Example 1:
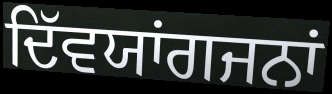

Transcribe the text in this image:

ਦਿੱਵਯਾਂਗਜਨਾਂ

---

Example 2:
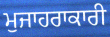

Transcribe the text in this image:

ਮੁਜਾਹਰਾਕਾਰੀ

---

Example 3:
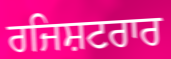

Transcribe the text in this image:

ਰਜਿਸ਼ਟਰਾਰ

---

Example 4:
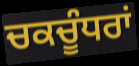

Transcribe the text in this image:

ਚਕਚੂੰਧਰਾਂ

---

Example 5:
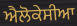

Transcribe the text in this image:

ਐਲੋਕੇਸੀਆ